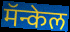
मॅन्केल